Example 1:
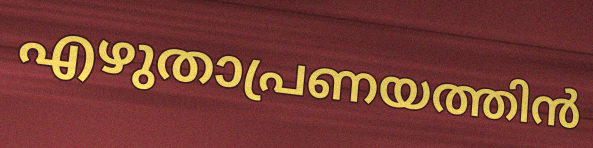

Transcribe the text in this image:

എഴുതാപ്രണയത്തിൻ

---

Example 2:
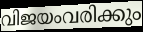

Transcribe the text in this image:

വിജയംവരിക്കും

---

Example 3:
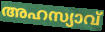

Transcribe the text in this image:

അഹസ്യാവ്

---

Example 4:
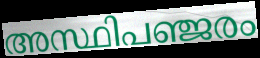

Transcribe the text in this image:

അസ്ഥിപഞ്ജരം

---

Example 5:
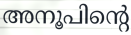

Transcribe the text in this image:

അനൂപിന്റെ